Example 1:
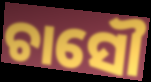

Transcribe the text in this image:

ଚାସୌ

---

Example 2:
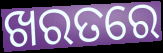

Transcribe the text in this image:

ଖରତରେ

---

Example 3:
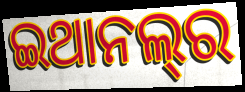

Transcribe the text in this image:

ଇଥାନଲ୍‌ର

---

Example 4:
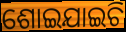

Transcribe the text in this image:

ଶୋଇଯାଇଚି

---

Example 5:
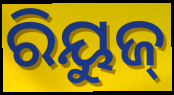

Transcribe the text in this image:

ରିୟୁଜ୍